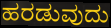
ಹರಡುವುದು